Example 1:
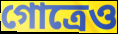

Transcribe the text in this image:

গোত্রেও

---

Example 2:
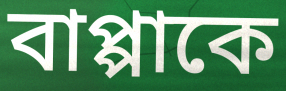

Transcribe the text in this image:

বাপ্পাকে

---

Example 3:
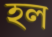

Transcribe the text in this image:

হল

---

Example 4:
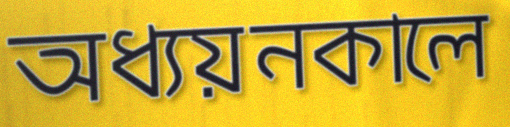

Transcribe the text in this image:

অধ্যয়নকালে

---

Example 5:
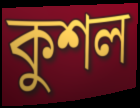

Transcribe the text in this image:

কুশল